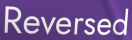
Reversed